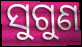
ସୁଗୁଣ